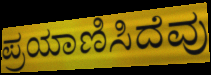
ಪ್ರಯಾಣಿಸಿದೆವು